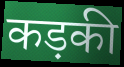
कड़की